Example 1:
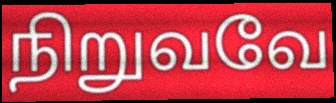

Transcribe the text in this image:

நிறுவவே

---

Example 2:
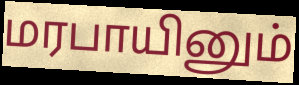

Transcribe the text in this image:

மரபாயினும்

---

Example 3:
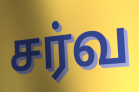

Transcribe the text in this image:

சர்வ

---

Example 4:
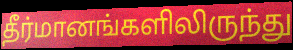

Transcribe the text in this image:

தீர்மானங்களிலிருந்து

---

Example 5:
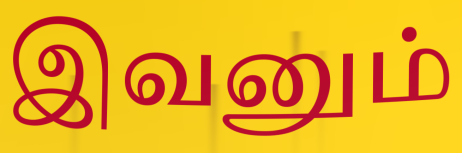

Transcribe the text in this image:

இவனும்